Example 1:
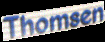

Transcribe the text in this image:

Thomsen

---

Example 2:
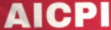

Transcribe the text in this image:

AICPI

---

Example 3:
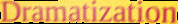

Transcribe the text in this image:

Dramatization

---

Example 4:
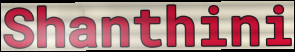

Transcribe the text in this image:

Shanthini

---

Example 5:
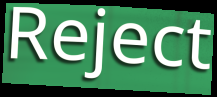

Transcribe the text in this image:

Reject